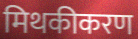
मिथकीकरण